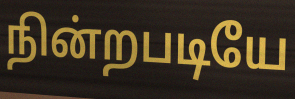
நின்றபடியே